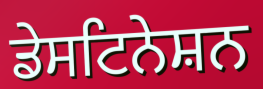
ਡੇਸਟਿਨੇਸ਼ਨ